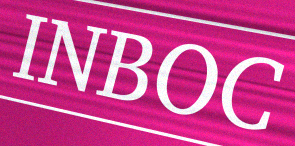
INBOC